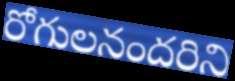
రోగులనందరిని